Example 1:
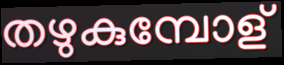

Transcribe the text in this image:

തഴുകുമ്പോള്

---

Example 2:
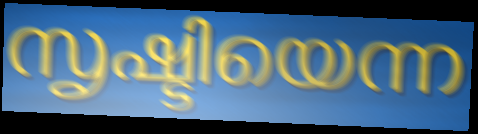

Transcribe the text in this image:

സൃഷ്ടിയെന്ന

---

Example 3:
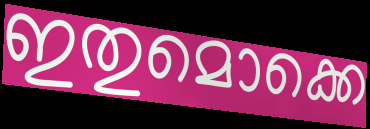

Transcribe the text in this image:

ഇതുമൊക്കെ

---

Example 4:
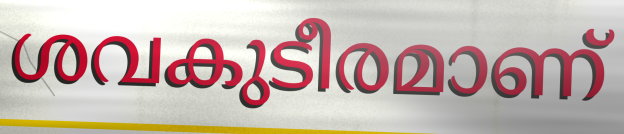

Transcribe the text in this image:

ശവകുടീരമാണ്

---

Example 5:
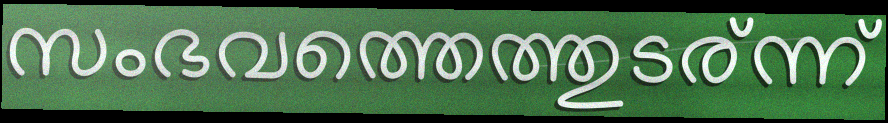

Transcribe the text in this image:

സംഭവത്തെത്തുടര്ന്ന്